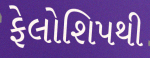
ફેલોશિપથી